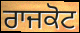
ਰਾਜਕੋਟ